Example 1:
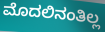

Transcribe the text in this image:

ಮೊದಲಿನಂತಿಲ್ಲ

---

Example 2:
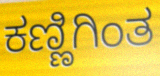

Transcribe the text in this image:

ಕಣ್ಣಿಗಿಂತ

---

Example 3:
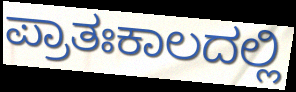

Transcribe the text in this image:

ಪ್ರಾತಃಕಾಲದಲ್ಲಿ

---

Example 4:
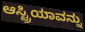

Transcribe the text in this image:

ಆಸ್ಟ್ರಿಯಾವನ್ನು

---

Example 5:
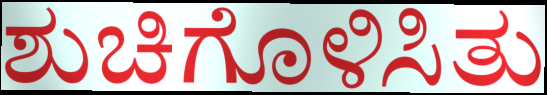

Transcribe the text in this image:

ಶುಚಿಗೊಳಿಸಿತು